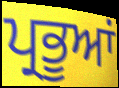
ਪ੍ਰਭੂਆਂ